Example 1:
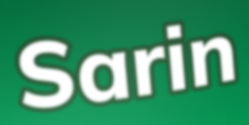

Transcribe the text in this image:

Sarin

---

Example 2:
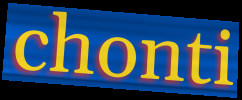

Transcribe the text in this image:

chonti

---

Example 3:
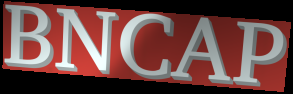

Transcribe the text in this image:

BNCAP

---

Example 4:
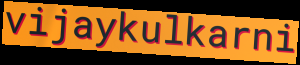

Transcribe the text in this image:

vijaykulkarni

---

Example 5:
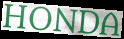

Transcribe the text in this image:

HONDA